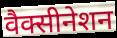
वैक्सीनेशन